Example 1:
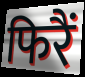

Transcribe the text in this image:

फिरैं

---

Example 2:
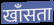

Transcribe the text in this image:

खाँसता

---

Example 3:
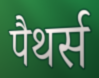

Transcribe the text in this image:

पैथर्स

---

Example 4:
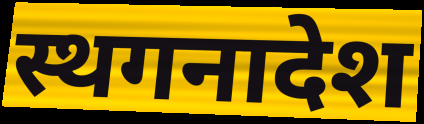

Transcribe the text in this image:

स्थगनादेश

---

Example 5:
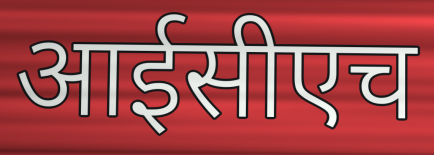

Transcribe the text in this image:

आईसीएच